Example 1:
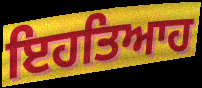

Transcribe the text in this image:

ਇਹਤਿਆਹ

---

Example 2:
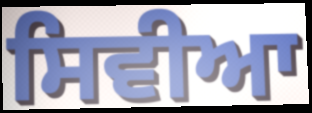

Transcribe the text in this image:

ਸਿਵੀਆ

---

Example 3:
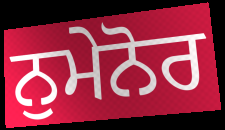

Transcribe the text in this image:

ਨੁਮੇਨੋਰ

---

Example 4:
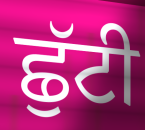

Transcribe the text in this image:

ਛੁੱਟੀ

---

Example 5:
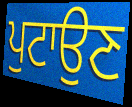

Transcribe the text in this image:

ਪੁਟਾਉਣ